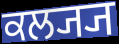
ਕਲ੍ਯ੍ਯ